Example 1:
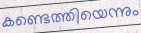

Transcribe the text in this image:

കണ്ടെത്തിയെന്നും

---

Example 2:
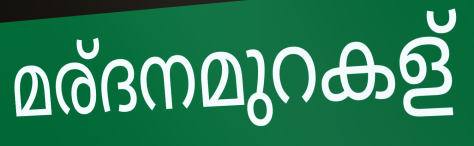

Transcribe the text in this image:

മര്ദനമുറകള്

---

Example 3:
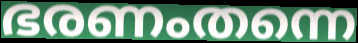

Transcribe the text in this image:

ഭരണംതന്നെ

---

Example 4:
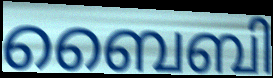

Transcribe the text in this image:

ബൈബി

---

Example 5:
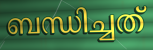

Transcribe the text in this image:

ബന്ധിച്ചത്